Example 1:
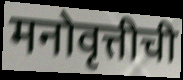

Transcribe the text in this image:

मनोवृत्तीची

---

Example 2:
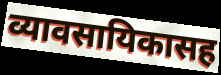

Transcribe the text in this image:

व्यावसायिकासह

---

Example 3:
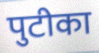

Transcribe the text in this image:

पुटीका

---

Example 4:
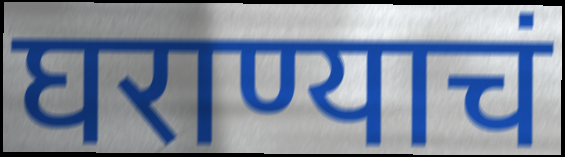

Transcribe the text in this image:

घराण्याचं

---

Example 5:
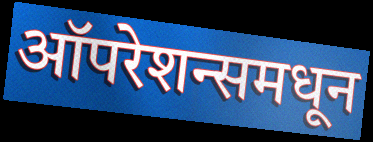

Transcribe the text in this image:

ऑपरेशन्समधून